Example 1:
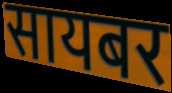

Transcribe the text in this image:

सायबर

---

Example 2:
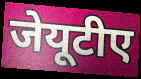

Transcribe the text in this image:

जेयूटीए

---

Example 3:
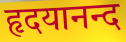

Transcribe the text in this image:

हृदयानन्द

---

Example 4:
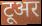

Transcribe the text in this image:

टूअर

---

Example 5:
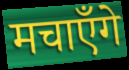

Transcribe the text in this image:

मचाएँगे